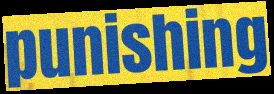
punishing